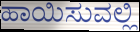
ಹಾಯಿಸುವಲ್ಲಿ